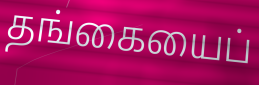
தங்கையைப்